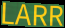
LARR